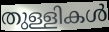
തുള്ളികൾ